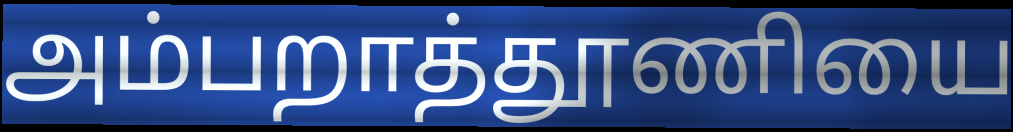
அம்பறாத்தூணியை